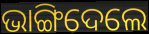
ଭାଙ୍ଗିଦେଲେ